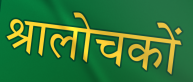
श्रालोचकों